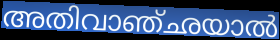
അതിവാഞ്ഛയാൽ